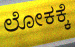
ಲೋಕಕ್ಕೆ